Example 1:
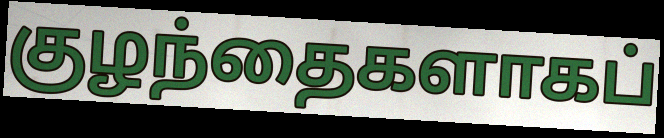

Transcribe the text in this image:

குழந்தைகளாகப்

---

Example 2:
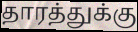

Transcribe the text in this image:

தாரத்துக்கு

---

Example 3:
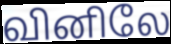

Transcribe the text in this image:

வினிலே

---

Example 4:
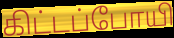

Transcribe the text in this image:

கிட்டப்போயி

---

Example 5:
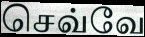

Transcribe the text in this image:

செவ்வே